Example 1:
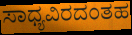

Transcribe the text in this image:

ಸಾಧ್ಯವಿರದಂತಹ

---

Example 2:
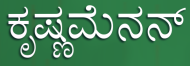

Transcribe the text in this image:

ಕೃಷ್ಣಮೆನನ್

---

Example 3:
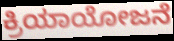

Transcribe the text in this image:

ಕ್ರಿಯಾಯೋಜನೆ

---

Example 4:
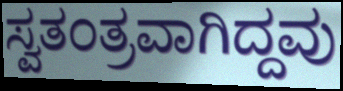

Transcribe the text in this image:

ಸ್ವತಂತ್ರವಾಗಿದ್ದವು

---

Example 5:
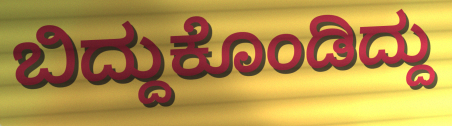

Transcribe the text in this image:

ಬಿದ್ದುಕೊಂಡಿದ್ದು